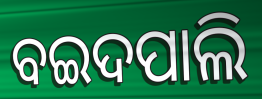
ବଇଦପାଲି